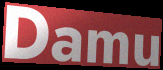
Damu